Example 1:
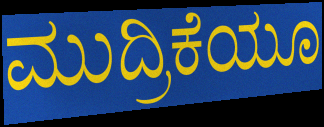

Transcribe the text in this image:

ಮುದ್ರಿಕೆಯೂ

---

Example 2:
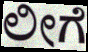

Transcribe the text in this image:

ಲೀಗೆ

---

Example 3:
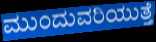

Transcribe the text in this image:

ಮುಂದುವರಿಯುತ್ತೆ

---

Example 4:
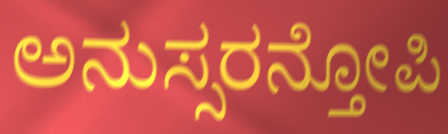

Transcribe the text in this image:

ಅನುಸ್ಸರನ್ತೋಪಿ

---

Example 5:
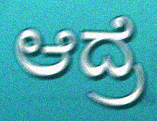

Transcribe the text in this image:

ಆದ್ರೆ